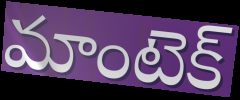
మాంటెక్